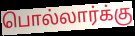
பொல்லார்க்கு